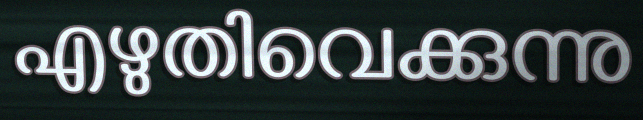
എഴുതിവെക്കുന്നു